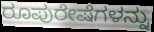
ರೂಪುರೇಷೆಗಳನ್ನು